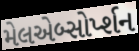
મેલએબ્સોર્પ્શન